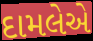
દામલેએ